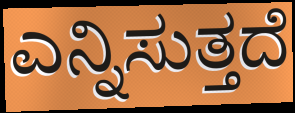
ಎನ್ನಿಸುತ್ತದೆ